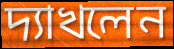
দ্যাখলেন